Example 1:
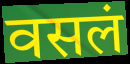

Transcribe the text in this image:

वसलं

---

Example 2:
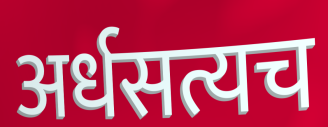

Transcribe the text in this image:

अर्धसत्यच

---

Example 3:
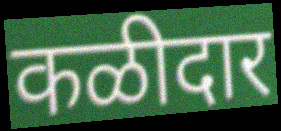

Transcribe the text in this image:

कळीदार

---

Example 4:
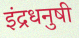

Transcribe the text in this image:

इंद्रधनुषी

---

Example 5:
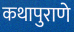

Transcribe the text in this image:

कथापुराणे